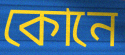
কোনে